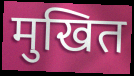
मुखित